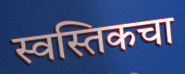
स्वस्तिकचा